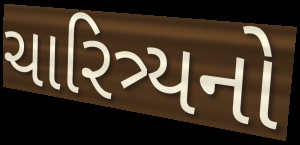
ચારિત્ર્યનો